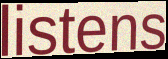
listens